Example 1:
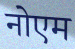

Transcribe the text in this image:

नोएम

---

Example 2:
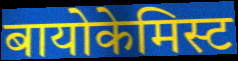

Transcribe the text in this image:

बायोकेमिस्ट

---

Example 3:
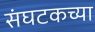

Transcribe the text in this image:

संघटकच्या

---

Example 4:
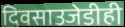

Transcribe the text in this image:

दिवसाउजेडीही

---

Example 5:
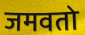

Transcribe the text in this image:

जमवतो